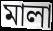
মালা